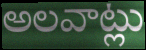
అలవాట్లు